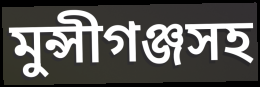
মুন্সীগঞ্জসহ